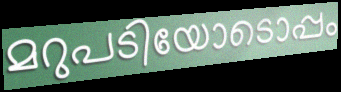
മറുപടിയോടൊപ്പം